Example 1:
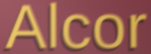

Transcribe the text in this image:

Alcor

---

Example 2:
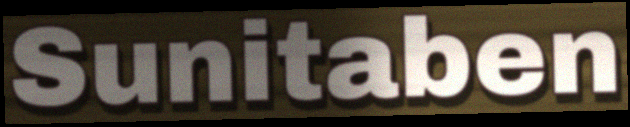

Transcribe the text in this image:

Sunitaben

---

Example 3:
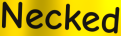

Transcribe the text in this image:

Necked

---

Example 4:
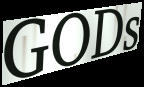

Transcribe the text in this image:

GODs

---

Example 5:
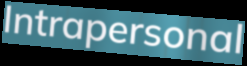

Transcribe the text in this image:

Intrapersonal